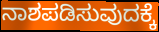
ನಾಶಪಡಿಸುವುದಕ್ಕೆ